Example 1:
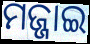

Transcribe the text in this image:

ମଜ୍ଜାଇ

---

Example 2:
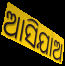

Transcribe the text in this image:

ଆସିଯାଅ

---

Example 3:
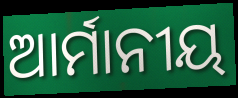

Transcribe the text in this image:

ଆର୍ମାନୀୟ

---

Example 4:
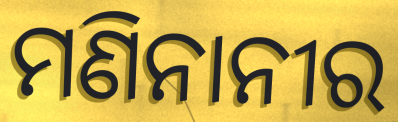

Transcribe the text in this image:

ମଣିନାନୀର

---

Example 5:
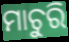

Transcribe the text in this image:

ମାଚୁରି